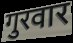
गुरवार